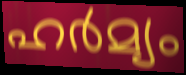
ഹർമ്യം